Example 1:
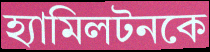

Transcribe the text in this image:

হ্যামিলটনকে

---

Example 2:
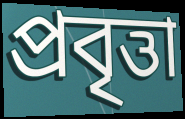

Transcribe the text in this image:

প্রবৃত্তা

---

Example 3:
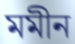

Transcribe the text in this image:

মমীন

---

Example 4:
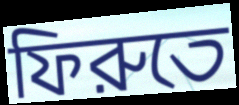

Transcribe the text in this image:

ফিরুতে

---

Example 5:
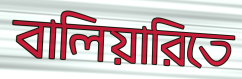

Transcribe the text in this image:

বালিয়ারিতে